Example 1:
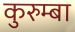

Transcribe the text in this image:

कुरुम्बा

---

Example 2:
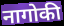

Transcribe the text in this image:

नागोकी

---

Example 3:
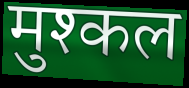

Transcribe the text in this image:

मुश्कल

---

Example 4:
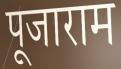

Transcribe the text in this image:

पूजाराम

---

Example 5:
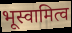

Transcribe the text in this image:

भूस्वामित्व